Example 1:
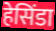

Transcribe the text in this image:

हेसिंडा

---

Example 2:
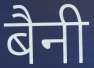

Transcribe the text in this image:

बैनी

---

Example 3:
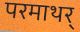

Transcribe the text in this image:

परमाथर्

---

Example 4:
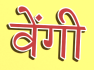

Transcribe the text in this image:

वेंगी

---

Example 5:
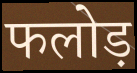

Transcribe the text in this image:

फलोड़